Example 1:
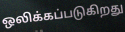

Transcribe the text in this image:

ஒலிக்கப்படுகிறது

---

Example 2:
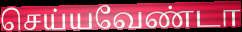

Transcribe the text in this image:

செய்யவேண்டா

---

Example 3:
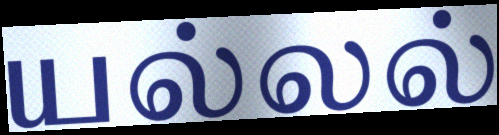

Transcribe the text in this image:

யல்லல்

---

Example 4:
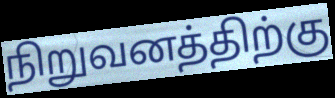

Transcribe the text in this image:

நிறுவனத்திற்கு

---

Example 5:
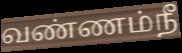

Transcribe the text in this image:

வண்ணம்நீ